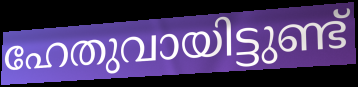
ഹേതുവായിട്ടുണ്ട്